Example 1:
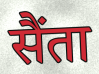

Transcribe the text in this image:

सैंता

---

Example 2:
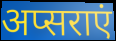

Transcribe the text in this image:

अप्सराएं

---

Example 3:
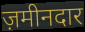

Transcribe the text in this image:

ज़मीनदार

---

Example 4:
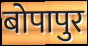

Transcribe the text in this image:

बोपापुर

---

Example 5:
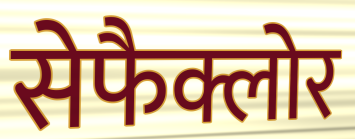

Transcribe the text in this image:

सेफैक्लोर